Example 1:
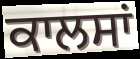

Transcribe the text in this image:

ਕਾਲਸਾਂ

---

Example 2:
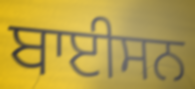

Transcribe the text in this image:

ਬਾਈਸਨ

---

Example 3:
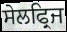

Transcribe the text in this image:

ਸੇਲਫ੍ਰਿਜ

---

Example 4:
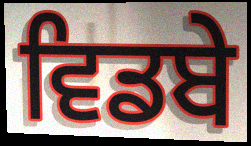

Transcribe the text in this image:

ਵਿਡਬੇ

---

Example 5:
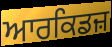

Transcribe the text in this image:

ਆਰਕਿਡਜ਼